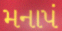
મનાપં